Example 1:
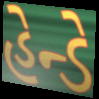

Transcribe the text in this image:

હેન્ડે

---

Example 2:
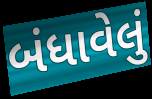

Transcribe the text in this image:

બંધાવેલું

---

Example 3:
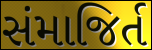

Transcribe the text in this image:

સંમાજિર્ત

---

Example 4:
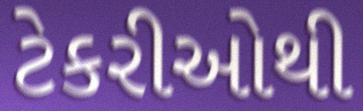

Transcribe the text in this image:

ટેકરીઓથી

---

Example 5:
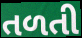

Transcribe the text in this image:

તળતી